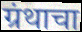
ग्रंथाचा